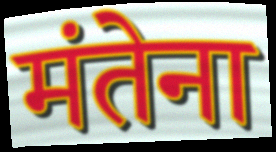
मंतेना